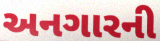
અનગારની